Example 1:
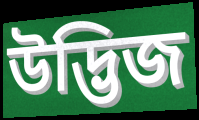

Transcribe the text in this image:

উদ্ভিজ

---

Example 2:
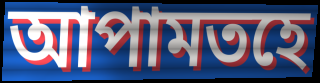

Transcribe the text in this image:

আপামতহে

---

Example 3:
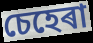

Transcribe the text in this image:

চেহেৰা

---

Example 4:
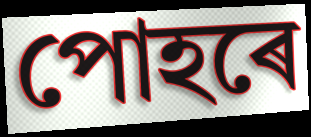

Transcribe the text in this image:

পোহৰে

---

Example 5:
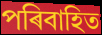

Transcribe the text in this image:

পৰিবাহিত